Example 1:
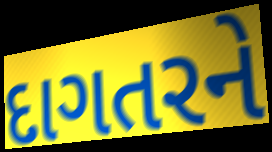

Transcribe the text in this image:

દાગતરને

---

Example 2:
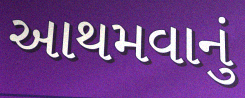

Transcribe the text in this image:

આથમવાનું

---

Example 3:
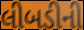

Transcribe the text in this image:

લીબડીની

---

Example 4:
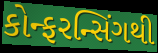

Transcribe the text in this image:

કોન્ફરન્સિંગથી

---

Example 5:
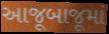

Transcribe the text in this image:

આજૂબાજૂમાં